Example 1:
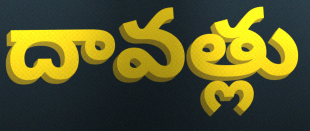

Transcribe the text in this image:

దావత్లు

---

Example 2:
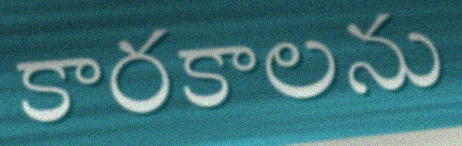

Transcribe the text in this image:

కారకాలను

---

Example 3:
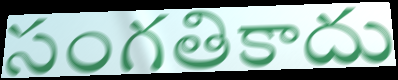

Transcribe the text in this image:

సంగతికాదు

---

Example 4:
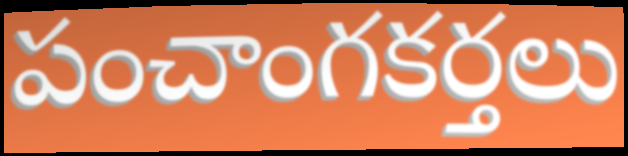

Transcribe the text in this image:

పంచాంగకర్తలు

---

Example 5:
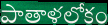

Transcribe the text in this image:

పాతాళలోకం